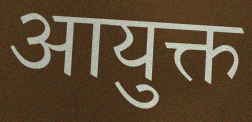
आयुक्त